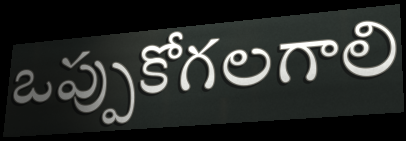
ఒప్పుకోగలగాలి